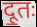
दू॒तः